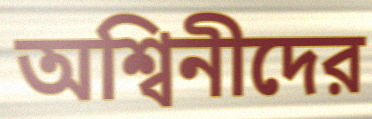
অশ্বিনীদের